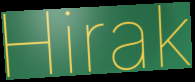
Hirak